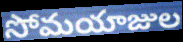
సోమయాజుల